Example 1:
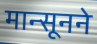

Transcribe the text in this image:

मान्सूनने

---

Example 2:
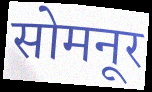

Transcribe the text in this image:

सोमनूर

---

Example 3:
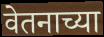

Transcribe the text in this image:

वेतनाच्या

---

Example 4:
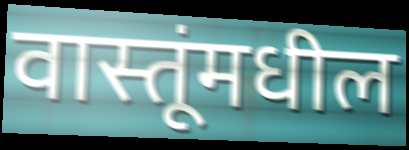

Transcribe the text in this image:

वास्तूंमधील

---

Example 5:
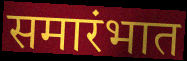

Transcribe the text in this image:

समारंभात